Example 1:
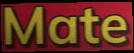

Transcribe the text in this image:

Mate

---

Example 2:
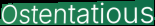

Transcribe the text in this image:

Ostentatious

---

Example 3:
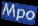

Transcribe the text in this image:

Mpo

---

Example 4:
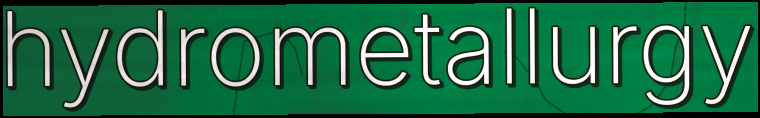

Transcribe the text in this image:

hydrometallurgy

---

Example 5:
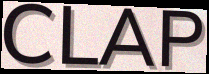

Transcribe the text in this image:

CLAP